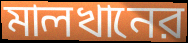
মালখানের